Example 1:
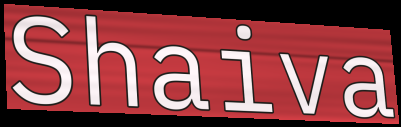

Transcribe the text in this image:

Shaiva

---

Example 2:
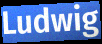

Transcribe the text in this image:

Ludwig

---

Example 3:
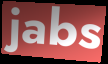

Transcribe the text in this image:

jabs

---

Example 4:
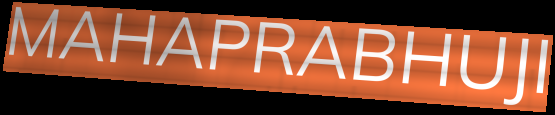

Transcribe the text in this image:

MAHAPRABHUJI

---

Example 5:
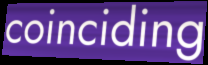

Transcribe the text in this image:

coinciding